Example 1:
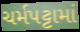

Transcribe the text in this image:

ચર્મપટ્ટામાં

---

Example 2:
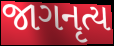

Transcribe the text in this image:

જાગનૃત્ય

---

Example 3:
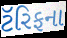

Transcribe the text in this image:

ટૅરિફના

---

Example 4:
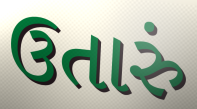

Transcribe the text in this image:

ઉતારું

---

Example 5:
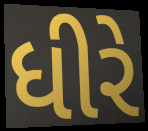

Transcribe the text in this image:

ધીરે